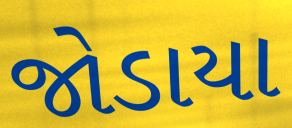
જોડાયા